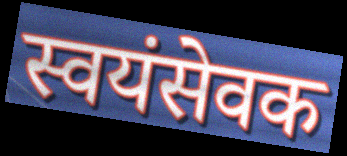
स्वयंसेवक